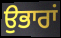
ਉਭਾਰਾਂ